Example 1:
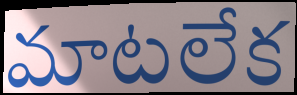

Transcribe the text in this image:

మాటలేక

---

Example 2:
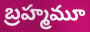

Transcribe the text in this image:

బ్రహ్మమూ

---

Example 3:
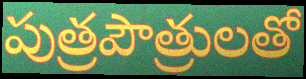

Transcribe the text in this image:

పుత్రపౌత్రులతో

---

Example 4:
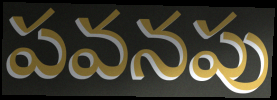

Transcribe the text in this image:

పవనపు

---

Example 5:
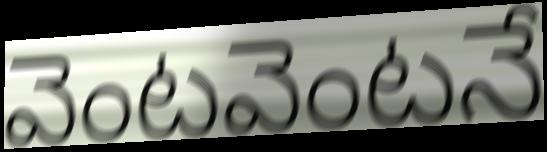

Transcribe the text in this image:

వెంటవెంటనే